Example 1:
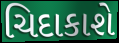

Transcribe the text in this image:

ચિદાકાશે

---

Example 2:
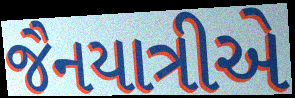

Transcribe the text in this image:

જૈનયાત્રીએ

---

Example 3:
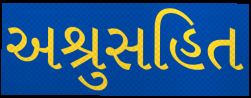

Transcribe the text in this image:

અશ્રુસહિત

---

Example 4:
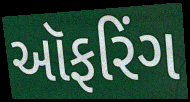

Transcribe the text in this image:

ઑફરિંગ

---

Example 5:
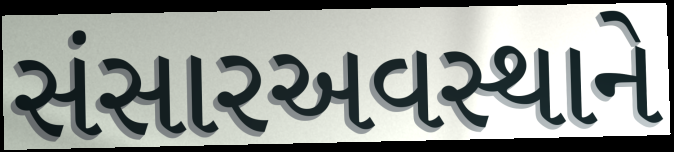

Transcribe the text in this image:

સંસારઅવસ્થાને